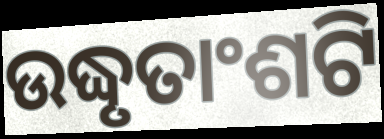
ଉଦ୍ଧୃତାଂଶଟି